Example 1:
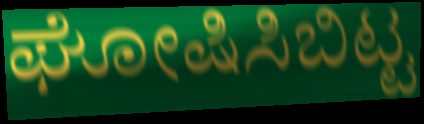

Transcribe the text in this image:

ಘೋಷಿಸಿಬಿಟ್ಟ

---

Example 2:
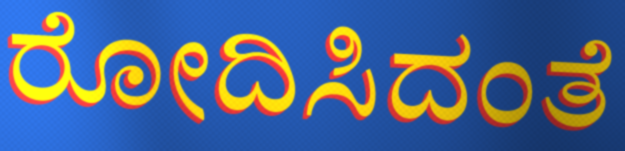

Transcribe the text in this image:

ರೋದಿಸಿದಂತೆ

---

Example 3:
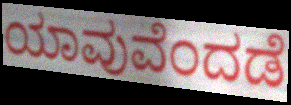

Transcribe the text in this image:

ಯಾವುವೆಂದಡೆ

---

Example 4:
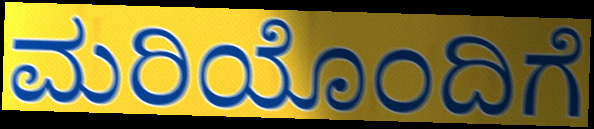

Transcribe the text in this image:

ಮರಿಯೊಂದಿಗೆ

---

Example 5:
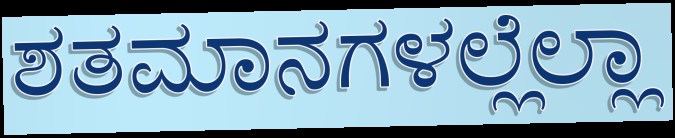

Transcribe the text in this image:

ಶತಮಾನಗಳಲ್ಲೆಲ್ಲಾ